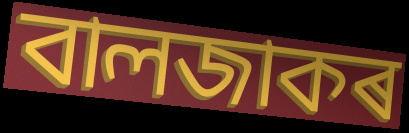
বালজাকৰ